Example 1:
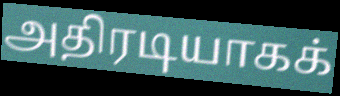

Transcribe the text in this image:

அதிரடியாகக்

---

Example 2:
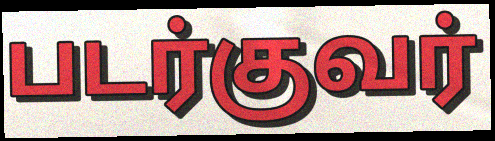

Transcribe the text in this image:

படர்குவர்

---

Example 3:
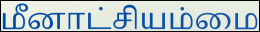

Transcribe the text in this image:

மீனாட்சியம்மை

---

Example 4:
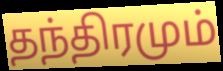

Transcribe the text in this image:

தந்திரமும்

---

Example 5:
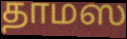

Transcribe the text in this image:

தாமஸ